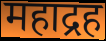
महाद्रह